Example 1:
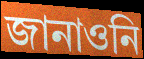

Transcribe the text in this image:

জানাওনি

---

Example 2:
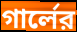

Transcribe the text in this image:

গার্লের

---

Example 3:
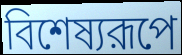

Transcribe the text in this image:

বিশেষ্যরূপে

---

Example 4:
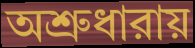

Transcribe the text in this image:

অশ্রুধারায়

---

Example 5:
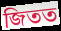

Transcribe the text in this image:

জিতত